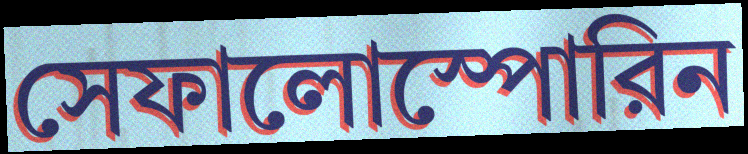
সেফালোস্পোরিন